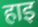
हाइ